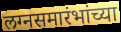
लग्नसमारंभांच्या